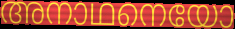
അനാഥനെയോ